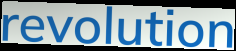
revolution